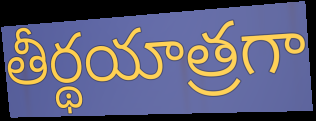
తీర్థయాత్రగా